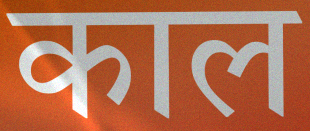
काल